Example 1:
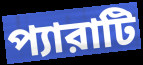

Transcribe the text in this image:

প্যারাটি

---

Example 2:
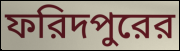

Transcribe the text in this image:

ফরিদপুরের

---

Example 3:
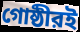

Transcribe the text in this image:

গোষ্ঠীরই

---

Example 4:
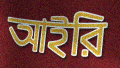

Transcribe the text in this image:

আইরি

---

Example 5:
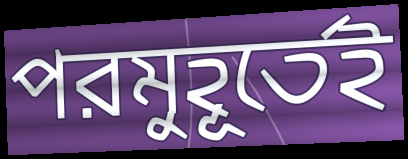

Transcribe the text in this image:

পরমুহূর্তেই